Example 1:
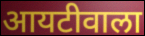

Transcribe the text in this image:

आयटीवाला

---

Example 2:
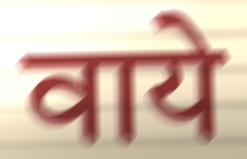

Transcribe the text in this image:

वाये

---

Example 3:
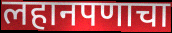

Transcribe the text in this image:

लहानपणाचा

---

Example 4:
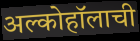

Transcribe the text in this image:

अल्कोहॉलाची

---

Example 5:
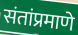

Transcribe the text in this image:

संतांप्रमाणे